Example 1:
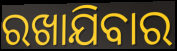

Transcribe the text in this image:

ରଖାଯିବାର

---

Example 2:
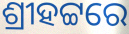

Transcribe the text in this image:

ଶ୍ରୀହଟ୍ଟରେ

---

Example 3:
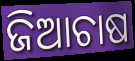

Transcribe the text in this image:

ଜିଆଚାଷ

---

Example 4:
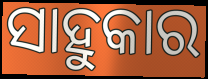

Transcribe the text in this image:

ସାହୁକାର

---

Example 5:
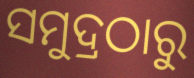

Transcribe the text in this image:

ସମୁଦ୍ରଠାରୁ